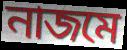
নাজমে